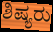
ಶಿಷ್ಯರು